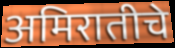
अमिरातीचे